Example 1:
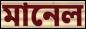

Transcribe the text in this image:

মানেল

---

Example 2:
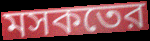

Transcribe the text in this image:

মসকতের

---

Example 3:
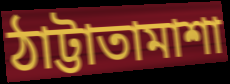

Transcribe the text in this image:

ঠাট্টাতামাশা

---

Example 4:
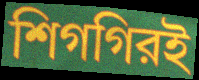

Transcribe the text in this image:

শিগগিরই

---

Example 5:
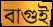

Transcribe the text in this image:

বাগুই